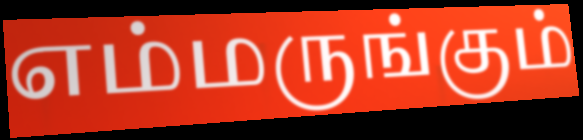
எம்மருங்கும்